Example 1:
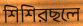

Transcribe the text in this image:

শিশিরছলে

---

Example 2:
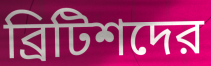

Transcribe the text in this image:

ব্রিটিশদের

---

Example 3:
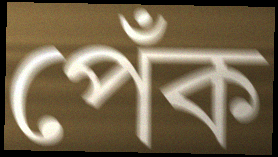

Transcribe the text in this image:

পেঁক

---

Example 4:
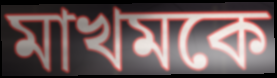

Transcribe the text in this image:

মাখমকে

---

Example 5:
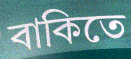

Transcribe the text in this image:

বাকিতে